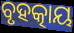
ବୃହତ୍କାୟ